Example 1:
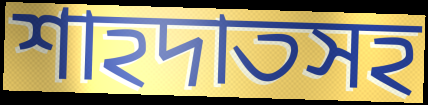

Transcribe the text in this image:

শাহদাতসহ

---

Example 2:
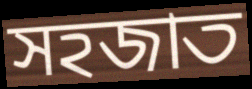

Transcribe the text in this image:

সহজাত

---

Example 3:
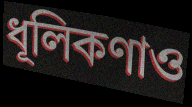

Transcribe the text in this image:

ধূলিকণাও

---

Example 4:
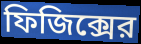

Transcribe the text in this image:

ফিজিক্সের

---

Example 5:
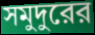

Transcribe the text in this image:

সমুদুরের